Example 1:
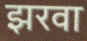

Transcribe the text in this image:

झरवा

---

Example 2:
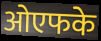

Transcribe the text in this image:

ओएफके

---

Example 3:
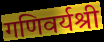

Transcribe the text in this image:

गणिवर्यश्री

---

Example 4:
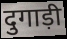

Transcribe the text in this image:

दुगाड़ी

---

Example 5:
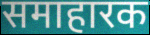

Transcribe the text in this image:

समाहारक